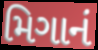
મિગાનં